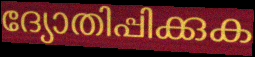
ദ്യോതിപ്പിക്കുക